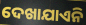
ଦେଖାଯାଏନି